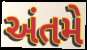
અંતમે